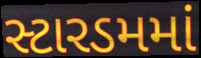
સ્ટારડમમાં